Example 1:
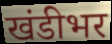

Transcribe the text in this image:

खंडीभर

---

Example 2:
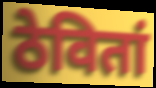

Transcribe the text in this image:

ठेवितां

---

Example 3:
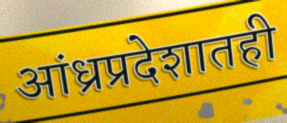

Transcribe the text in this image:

आंध्रप्रदेशातही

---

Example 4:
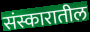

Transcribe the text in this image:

संस्कारातील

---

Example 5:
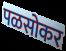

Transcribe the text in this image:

पळसोकर